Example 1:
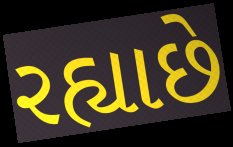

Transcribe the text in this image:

રહ્યાછે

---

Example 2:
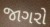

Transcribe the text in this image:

જાગરો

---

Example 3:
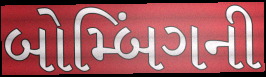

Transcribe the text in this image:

બોમ્બિંગની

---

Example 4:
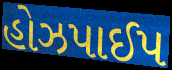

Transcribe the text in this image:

હોઝપાઈપ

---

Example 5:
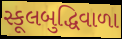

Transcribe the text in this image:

સ્કૂલબુદ્ધિવાળા